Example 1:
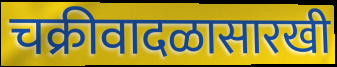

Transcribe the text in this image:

चक्रीवादळासारखी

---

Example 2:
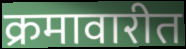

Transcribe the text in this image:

क्रमावारीत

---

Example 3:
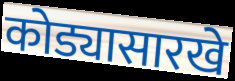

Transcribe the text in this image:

कोड्यासारखे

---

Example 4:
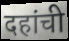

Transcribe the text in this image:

दहांची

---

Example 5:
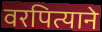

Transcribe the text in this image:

वरपित्याने